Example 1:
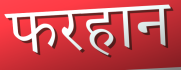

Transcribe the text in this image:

फरहान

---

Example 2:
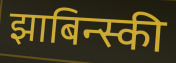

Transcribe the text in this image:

झाबिन्स्की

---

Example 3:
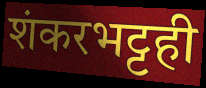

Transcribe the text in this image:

शंकरभट्टही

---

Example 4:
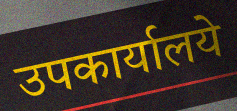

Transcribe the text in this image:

उपकार्यालये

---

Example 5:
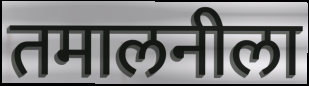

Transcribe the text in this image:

तमालनीला